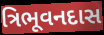
ત્રિભૂવનદાસ